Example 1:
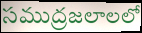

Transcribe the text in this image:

సముద్రజలాలలో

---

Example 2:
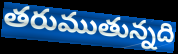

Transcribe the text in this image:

తరుముతున్నది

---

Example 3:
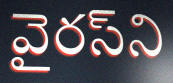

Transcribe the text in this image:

వైరస్‌ని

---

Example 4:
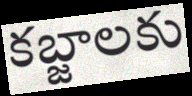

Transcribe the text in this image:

కబ్జాలకు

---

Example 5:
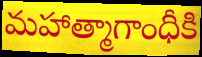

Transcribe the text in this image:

మహాత్మాగాంధీకి